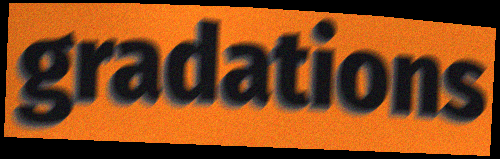
gradations